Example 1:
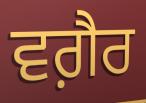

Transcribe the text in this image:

ਵਗ਼ੈਰ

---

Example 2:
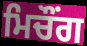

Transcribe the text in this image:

ਮਿਚੌਂਗ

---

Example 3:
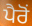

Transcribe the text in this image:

ਪੈਰੋਂ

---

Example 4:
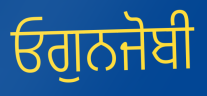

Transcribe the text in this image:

ਓਗੁਨਜੋਬੀ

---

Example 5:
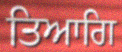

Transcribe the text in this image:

ਤਿਆਗਿ